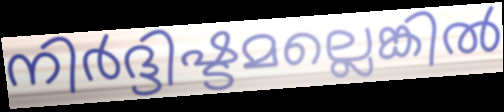
നിർദ്ദിഷ്ടമല്ലെങ്കിൽ